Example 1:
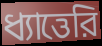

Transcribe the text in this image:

ধ্যাত্তেরি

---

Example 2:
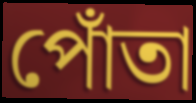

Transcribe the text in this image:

পোঁতা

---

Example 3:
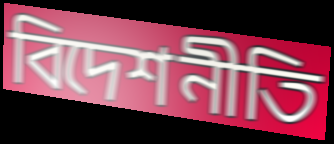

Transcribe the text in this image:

বিদেশনীতি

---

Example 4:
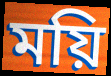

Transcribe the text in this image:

ময়ি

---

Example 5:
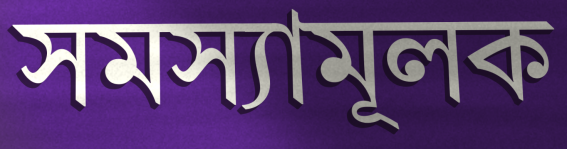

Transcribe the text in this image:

সমস্যামূলক